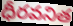
ధీరవనిత